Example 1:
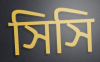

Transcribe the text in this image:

সিসি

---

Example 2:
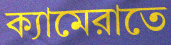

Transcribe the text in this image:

ক্যামেরাতে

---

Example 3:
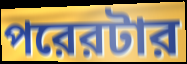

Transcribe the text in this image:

পরেরটার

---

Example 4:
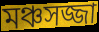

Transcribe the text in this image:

মঞ্চসজ্জা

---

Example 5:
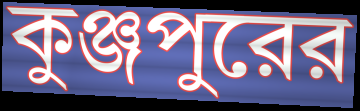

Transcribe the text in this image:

কুঞ্জপুরের